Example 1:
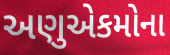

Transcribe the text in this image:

અણુએકમોના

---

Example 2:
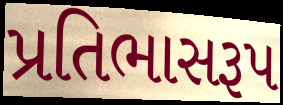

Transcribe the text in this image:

પ્રતિભાસરૂપ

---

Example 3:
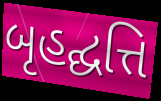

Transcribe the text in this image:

બૃહદ્ઘત્તિ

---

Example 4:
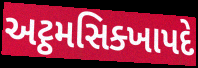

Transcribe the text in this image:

અટ્ઠમસિક્ખાપદે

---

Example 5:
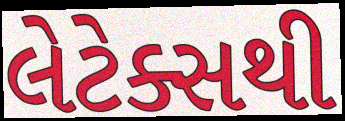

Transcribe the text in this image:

લેટેક્સથી